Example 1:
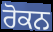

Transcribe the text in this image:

ਰੋਕਨ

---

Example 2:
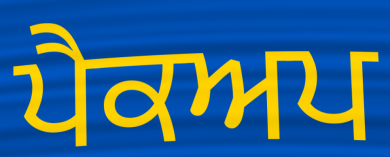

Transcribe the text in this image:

ਪੈਕਅਪ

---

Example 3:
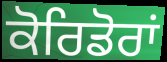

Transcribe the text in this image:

ਕੋਰਿਡੋਰਾਂ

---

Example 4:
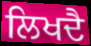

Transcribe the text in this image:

ਲਿਖਦੈ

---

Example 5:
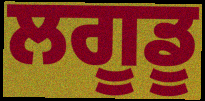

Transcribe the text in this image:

ਲਗੂਡੂ